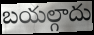
బయల్గాదు